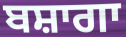
ਬਸ਼ਾਗਾ